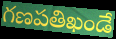
గణపతిఖండే